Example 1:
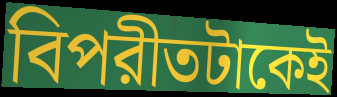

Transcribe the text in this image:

বিপরীতটাকেই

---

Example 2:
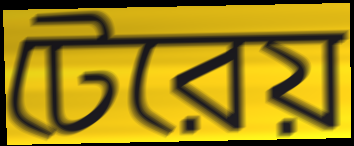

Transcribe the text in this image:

টেরেয়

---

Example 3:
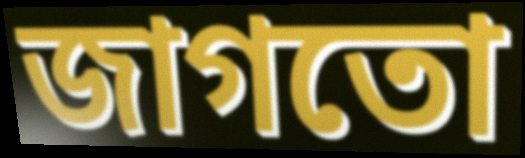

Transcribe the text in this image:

জাগতো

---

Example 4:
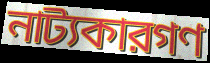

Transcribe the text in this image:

নাট্যকারগণ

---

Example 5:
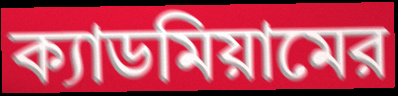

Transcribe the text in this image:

ক্যাডমিয়ামের